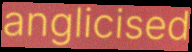
anglicised